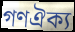
গণঐক্য